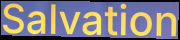
Salvation